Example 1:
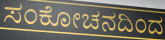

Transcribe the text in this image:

ಸಂಕೋಚನದಿಂದ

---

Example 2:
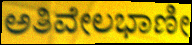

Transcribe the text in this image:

ಅತಿವೇಲಭಾಣೀ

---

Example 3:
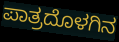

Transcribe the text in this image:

ಪಾತ್ರದೊಳಗಿನ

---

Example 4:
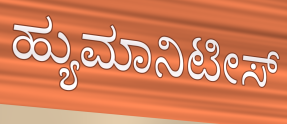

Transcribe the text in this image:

ಹ್ಯುಮಾನಿಟೀಸ್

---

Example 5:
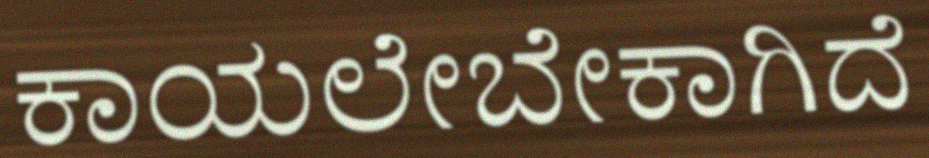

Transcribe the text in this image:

ಕಾಯಲೇಬೇಕಾಗಿದೆ